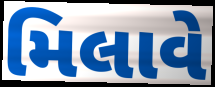
મિલાવે